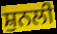
ਸ਼ੁਨਲੀ